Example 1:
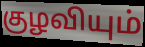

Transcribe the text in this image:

குழவியும்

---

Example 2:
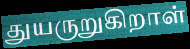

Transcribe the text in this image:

துயருறுகிறாள்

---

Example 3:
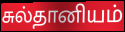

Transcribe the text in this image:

சுல்தானியம்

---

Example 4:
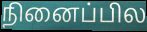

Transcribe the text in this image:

நினைப்பில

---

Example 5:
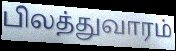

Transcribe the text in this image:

பிலத்துவாரம்